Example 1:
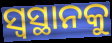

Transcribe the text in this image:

ସ୍ୱସ୍ଥାନକୁ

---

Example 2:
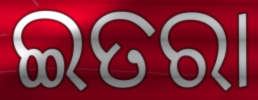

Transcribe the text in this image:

ଇତରା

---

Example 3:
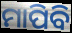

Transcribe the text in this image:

ମାପିବି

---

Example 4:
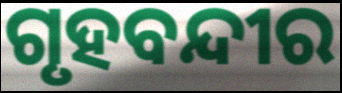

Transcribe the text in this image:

ଗୃହବନ୍ଦୀର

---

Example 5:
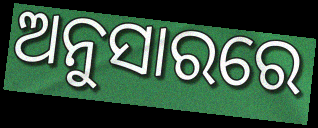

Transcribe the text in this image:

ଅନୁସାରରେ